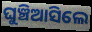
ଘୁଞ୍ଚିଆସିଲେ